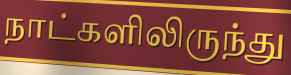
நாட்களிலிருந்து